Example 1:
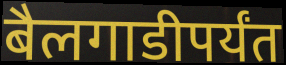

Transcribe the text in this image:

बैलगाडीपर्यंत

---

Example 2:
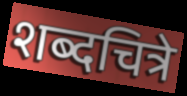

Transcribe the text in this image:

शब्दचित्रे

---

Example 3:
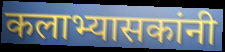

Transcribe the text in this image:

कलाभ्यासकांनी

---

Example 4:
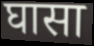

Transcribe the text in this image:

घासा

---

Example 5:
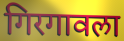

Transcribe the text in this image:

गिरगावला